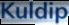
Kuldip